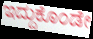
ಇದ್ದುಕೊಂಡೇ